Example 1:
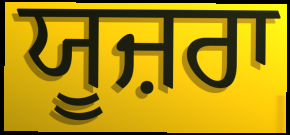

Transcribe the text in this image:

ਯੂਜ਼ਰਾ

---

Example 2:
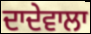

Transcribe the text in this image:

ਦਾਦੇਵਾਲਾ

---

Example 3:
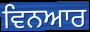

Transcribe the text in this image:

ਵਿਨਆਰ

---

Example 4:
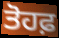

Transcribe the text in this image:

ਤੋਹਫ਼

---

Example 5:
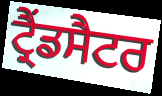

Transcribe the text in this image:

ਟ੍ਰੈਂਡਸੈਟਰ